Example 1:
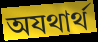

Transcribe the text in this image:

অযথার্থ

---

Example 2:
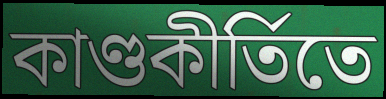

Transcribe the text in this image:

কাণ্ডকীর্তিতে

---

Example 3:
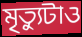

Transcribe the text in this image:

মৃত্যুটাও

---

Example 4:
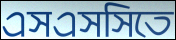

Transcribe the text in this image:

এসএসসিতে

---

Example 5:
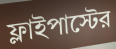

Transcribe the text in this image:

ফ্লাইপাস্টের